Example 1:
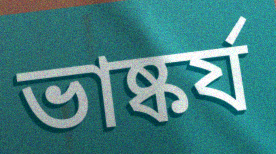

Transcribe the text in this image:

ভাষ্কর্য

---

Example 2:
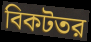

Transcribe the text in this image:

বিকটতর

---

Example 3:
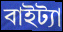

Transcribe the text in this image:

বাইট্যা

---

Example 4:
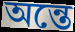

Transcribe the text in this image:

অন্তে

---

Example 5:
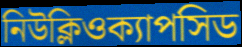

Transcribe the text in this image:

নিউক্লিওক্যাপসিড